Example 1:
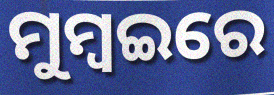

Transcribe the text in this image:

ମୁମ୍ବଇରେ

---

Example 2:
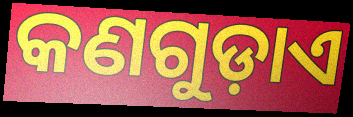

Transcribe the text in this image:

କଣଗୁଡ଼ାଏ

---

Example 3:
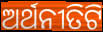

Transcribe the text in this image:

ଅର୍ଥନୀତିଟି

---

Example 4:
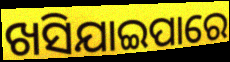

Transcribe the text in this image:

ଖସିଯାଇପାରେ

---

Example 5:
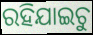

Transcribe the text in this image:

ରହିଯାଇଚୁ